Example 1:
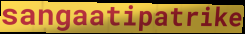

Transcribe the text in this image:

sangaatipatrike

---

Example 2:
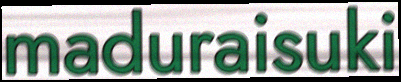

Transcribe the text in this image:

maduraisuki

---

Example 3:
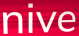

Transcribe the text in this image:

nive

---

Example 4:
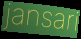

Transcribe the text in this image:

jansari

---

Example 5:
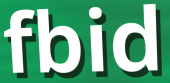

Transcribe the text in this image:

fbid